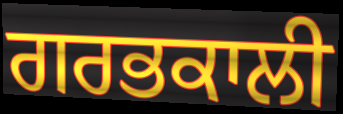
ਗਰਭਕਾਲੀ